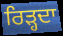
ਰਿੜ੍ਹਦਾ